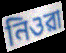
নিওৱা